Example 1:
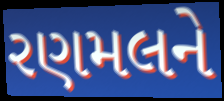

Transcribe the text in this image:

રણમલને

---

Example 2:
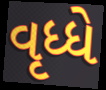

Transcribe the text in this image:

વૃધ્ધે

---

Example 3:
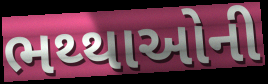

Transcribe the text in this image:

ભથ્થાઓની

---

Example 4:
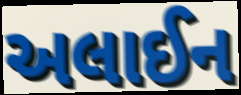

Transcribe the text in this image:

અલાઈન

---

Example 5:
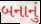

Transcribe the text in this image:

બનાનું